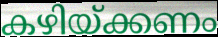
കഴിയ്ക്കണം